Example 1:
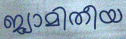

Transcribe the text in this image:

ജ്യാമിതീയ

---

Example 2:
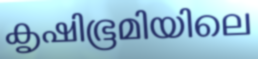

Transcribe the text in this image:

കൃഷിഭൂമിയിലെ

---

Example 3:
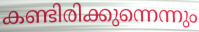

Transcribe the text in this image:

കണ്ടിരിക്കുന്നെന്നും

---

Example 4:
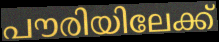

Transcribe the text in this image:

പൗരിയിലേക്ക്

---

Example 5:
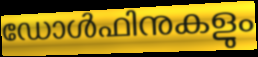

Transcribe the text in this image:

ഡോൾഫിനുകളും